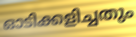
ഓടിക്കളിച്ചതും